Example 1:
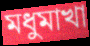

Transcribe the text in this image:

মধুমাখা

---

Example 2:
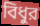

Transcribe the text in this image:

বিধুর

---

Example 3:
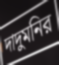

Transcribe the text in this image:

দাদুমনির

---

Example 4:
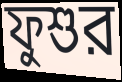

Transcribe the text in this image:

ফুশুর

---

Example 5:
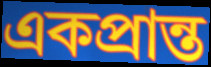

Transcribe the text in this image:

একপ্রান্ত